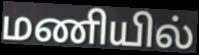
மணியில்